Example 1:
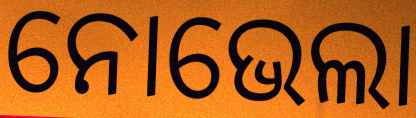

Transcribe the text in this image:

ନୋଭେଲା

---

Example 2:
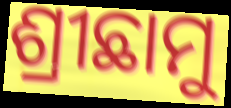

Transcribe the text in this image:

ଶ୍ରୀଛାମୁ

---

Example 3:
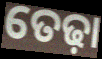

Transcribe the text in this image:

ତେଢ଼ା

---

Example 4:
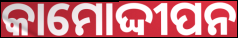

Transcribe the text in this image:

କାମୋଦ୍ଦୀପନ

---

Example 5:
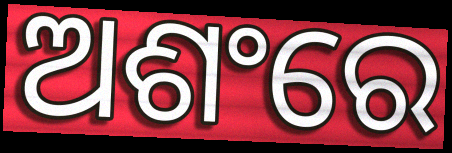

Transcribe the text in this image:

ଅଶଂରେ